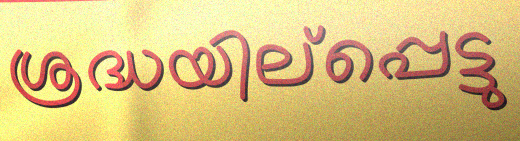
ശ്രദ്ധയില്പ്പെട്ടു